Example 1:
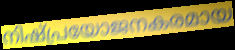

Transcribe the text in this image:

നിഷ്പ്രയോജനകരമായ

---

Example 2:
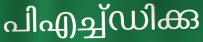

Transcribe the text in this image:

പിഎച്ച്ഡിക്കു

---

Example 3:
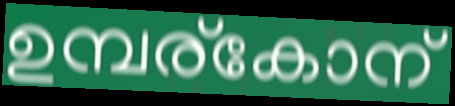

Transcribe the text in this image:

ഉമ്പര്കോന്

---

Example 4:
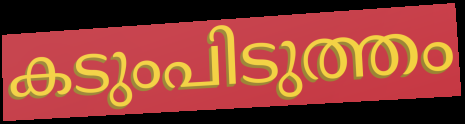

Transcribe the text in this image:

കടുംപിടുത്തം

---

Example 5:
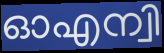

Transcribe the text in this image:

ഓഎന്വി